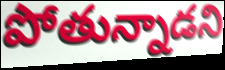
పోతున్నాడని